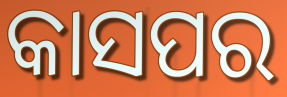
କାସପର